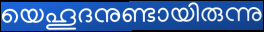
യെഹൂദനുണ്ടായിരുന്നു